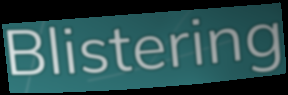
Blistering